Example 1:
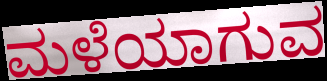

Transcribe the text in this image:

ಮಳೆಯಾಗುವ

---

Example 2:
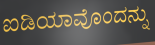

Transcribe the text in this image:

ಐಡಿಯಾವೊಂದನ್ನು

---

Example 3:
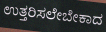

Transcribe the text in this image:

ಉತ್ತರಿಸಲೇಬೇಕಾದ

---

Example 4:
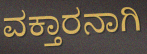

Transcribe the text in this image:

ವಕ್ತಾರನಾಗಿ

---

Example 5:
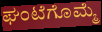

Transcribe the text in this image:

ಘಂಟೆಗೊಮ್ಮೆ